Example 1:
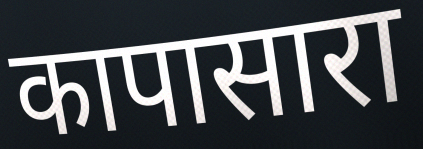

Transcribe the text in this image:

कापासारा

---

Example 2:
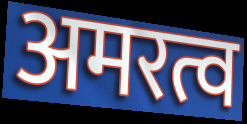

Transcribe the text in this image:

अमरत्व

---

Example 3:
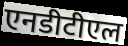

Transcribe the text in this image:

एनडीटीएल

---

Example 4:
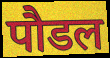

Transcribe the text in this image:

पौडल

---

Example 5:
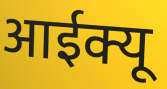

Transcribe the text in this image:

आईक्यू